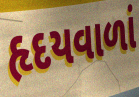
હૃદયવાળાં